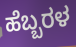
ಹೆಬ್ಬರಳ